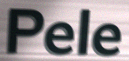
Pele